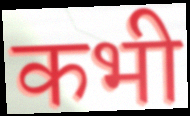
कभी